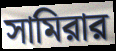
সামিরার